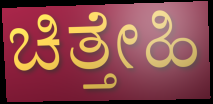
ಚಿತ್ತೇಹಿ